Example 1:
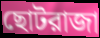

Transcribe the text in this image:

ছোটরাজা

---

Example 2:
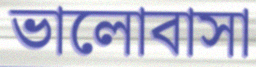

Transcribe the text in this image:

ভালোবাসা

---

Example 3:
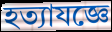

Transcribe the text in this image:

হত্যাযজ্ঞে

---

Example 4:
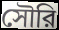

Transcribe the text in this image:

সৌরি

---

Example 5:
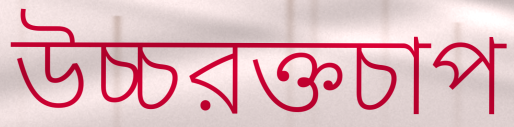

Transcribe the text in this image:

উচ্চরক্তচাপ